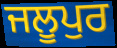
ਜਲੂਪੁਰ